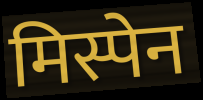
मिस्पेन